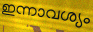
ഇന്നാവശ്യം